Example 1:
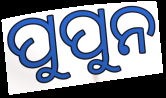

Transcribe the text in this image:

ପୁପୁନ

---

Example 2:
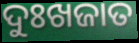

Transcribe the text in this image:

ଦୁଃଖଜାତ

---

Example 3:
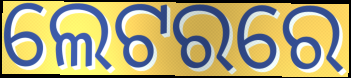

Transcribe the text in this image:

ଲେଟରରେ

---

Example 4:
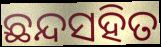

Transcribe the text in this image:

ଛନ୍ଦସହିତ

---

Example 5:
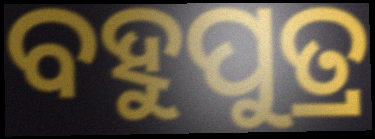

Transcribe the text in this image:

ବହୁପୁତ୍ର